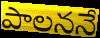
పాలననే